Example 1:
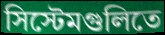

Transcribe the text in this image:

সিস্টেমগুলিতে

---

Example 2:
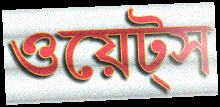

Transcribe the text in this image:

ওয়েট্স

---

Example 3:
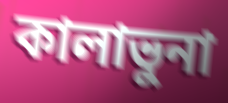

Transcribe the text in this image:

কালাভুনা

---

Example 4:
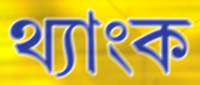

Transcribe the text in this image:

থ্যাংক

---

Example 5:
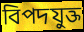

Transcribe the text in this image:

বিপদযুক্ত